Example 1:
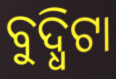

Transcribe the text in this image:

ବୁଦ୍ଧିଟା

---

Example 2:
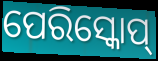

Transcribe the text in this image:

ପେରିସ୍କୋପ୍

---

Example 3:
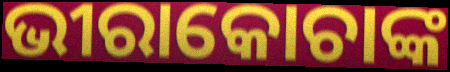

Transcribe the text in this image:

ଭୀରାକୋଚାଙ୍କ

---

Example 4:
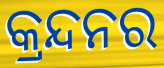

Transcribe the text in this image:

କ୍ରନ୍ଦନର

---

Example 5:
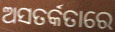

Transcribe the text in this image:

ଅସତର୍କତାରେ